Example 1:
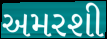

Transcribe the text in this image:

અમરશી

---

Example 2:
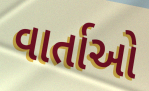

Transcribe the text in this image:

વાર્તાઓ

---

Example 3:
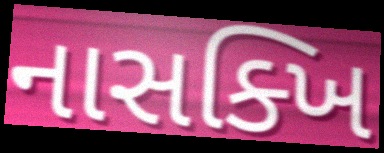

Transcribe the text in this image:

નાસક્ખિ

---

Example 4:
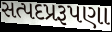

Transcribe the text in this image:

સત્પદપ્રરૂપણા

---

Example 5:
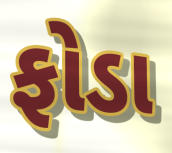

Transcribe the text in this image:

ફોડા